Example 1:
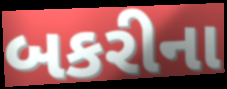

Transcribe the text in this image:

બકરીના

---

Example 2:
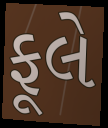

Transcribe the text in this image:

ફૂલે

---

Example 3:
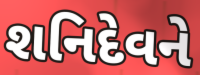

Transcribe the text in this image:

શનિદેવને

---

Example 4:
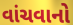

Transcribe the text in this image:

વાંચવાનો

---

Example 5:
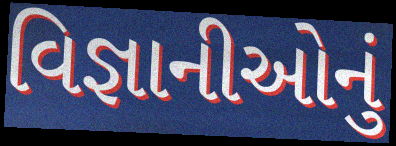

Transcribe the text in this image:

વિજ્ઞાનીઓનું